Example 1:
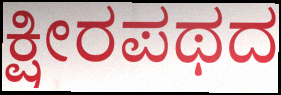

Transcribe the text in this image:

ಕ್ಷೀರಪಥದ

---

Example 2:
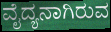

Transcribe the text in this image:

ವೈದ್ಯನಾಗಿರುವ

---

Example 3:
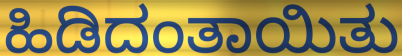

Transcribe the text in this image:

ಹಿಡಿದಂತಾಯಿತು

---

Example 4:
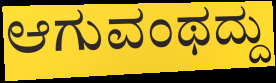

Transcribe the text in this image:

ಆಗುವಂಥದ್ದು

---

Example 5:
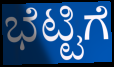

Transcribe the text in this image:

ಭೆಟ್ಟಿಗೆ